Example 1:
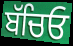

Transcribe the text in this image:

ਬੱਚਿਓ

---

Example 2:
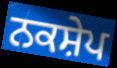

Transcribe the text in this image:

ਨਕਸ਼ੇਪ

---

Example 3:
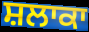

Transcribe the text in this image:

ਸ਼ਲਾਕਾ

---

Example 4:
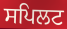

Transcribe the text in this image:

ਸਪਿਲਟ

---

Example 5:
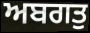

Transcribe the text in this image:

ਅਬਗਤੁ